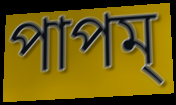
পাপম্